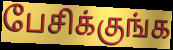
பேசிக்குங்க